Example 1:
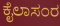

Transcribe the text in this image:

ಕೈಲಾಸಂರ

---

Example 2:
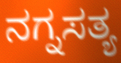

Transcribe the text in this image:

ನಗ್ನಸತ್ಯ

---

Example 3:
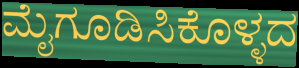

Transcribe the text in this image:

ಮೈಗೂಡಿಸಿಕೊಳ್ಳದ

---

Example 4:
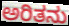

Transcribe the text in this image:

ಅರಿತನು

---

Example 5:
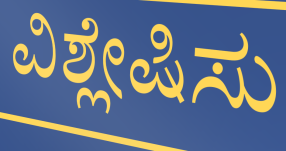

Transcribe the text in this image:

ವಿಶ್ಲೇಷಿಸು